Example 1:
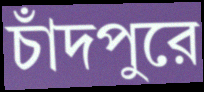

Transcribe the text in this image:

চাঁদপুরে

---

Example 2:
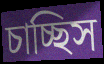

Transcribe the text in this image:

চাচ্ছিস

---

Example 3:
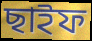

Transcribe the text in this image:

ছাইফ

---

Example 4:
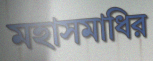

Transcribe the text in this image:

মহাসমাধির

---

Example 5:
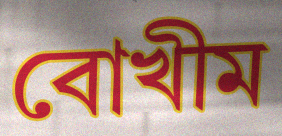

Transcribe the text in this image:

বোখীম